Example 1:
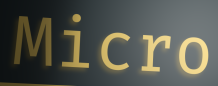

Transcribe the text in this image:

Micro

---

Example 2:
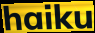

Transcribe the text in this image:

haiku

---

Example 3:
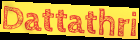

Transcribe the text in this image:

Dattathri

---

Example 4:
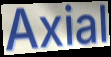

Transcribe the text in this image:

Axial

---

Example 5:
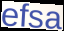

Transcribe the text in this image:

efsa